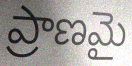
ప్రాణమై